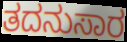
ತದನುಸಾರ